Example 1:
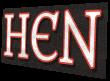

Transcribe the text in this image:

HEN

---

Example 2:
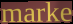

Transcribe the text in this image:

marke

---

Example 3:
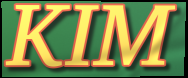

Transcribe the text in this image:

KIM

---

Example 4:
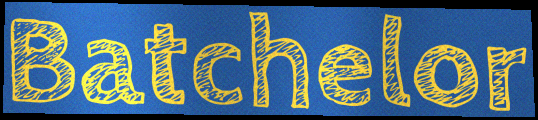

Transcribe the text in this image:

Batchelor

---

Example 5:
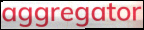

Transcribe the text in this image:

aggregator